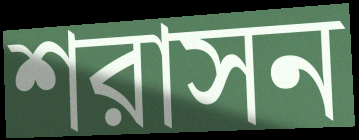
শরাসন